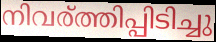
നിവര്ത്തിപ്പിടിച്ചു